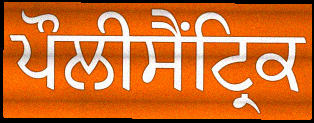
ਪੌਲੀਸੈਂਟ੍ਰਿਕ